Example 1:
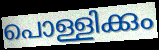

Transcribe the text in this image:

പൊള്ളിക്കും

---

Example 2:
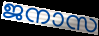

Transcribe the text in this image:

ജനാസ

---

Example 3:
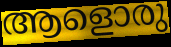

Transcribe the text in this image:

ആളൊരു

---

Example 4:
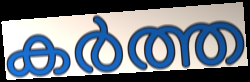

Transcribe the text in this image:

കർത്ത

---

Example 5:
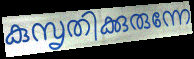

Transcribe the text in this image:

കുസൃതിക്കുരുന്നേ